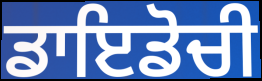
ਡਾਇਡੋਚੀ